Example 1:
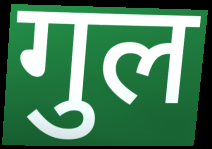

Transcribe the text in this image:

गुल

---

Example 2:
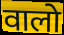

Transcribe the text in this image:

वालो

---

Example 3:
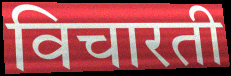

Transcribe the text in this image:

विचारती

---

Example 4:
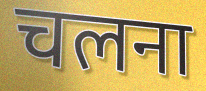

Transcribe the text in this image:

चलना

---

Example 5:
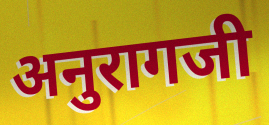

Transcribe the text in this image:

अनुरागजी